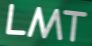
LMT